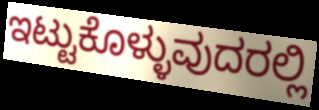
ಇಟ್ಟುಕೊಳ್ಳುವುದರಲ್ಲಿ